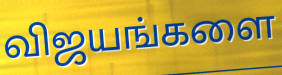
விஜயங்களை